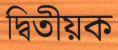
দ্বিতীয়ক